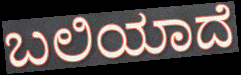
ಬಲಿಯಾದೆ